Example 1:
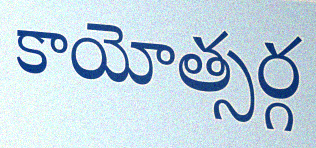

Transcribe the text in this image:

కాయోత్సర్గ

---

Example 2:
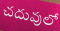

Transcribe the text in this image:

చదువులో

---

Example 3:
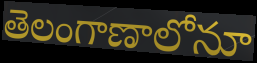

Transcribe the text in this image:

తెలంగాణాలోనూ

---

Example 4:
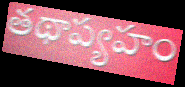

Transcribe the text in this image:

తథాప్యహం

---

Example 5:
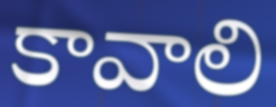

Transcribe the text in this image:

కావాలి